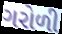
ગરોળી